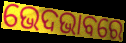
ଭେଦଭାବରେ